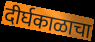
दीर्घकाळाचा